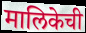
मालिकेची